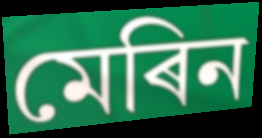
মেৰিন